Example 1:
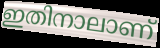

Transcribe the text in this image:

ഇതിനാലാണ്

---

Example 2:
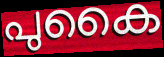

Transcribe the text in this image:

പുകൈ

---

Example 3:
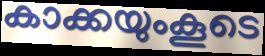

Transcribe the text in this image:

കാക്കയുംകൂടെ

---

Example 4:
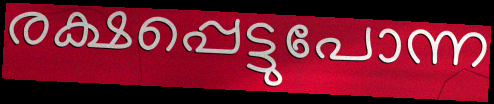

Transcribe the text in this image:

രക്ഷപ്പെട്ടുപോന്ന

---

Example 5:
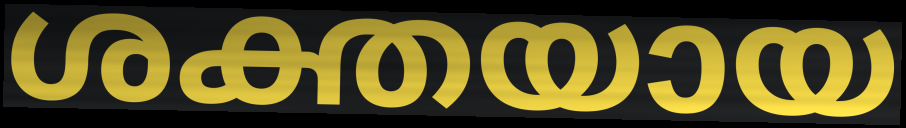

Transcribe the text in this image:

ശക്തയായ